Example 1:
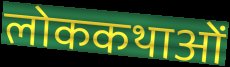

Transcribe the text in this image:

लोककथाओं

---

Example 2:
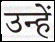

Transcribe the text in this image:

उन्‍हें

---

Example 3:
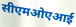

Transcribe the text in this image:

सीएमओएआई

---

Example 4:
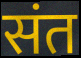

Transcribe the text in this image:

संत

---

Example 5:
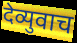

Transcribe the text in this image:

देव्युवाच